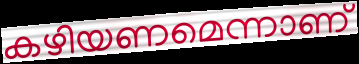
കഴിയണമെന്നാണ്